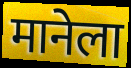
मानेला